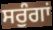
ਸਰੁੰਗਾਂ